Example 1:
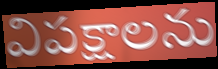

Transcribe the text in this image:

విపక్షాలను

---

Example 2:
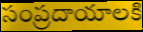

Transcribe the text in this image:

సంప్రదాయాలకి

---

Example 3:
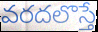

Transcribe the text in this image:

వరదలొస్తే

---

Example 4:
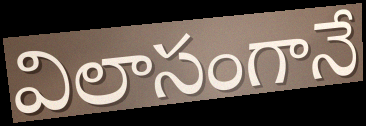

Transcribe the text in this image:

విలాసంగానే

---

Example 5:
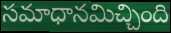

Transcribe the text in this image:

సమాధానమిచ్చింది